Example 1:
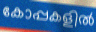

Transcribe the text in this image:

കോപ്പകളിൽ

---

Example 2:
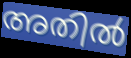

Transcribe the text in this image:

അതിൽ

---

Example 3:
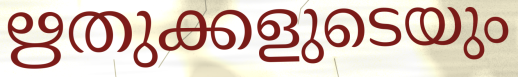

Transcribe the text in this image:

ഋതുക്കളുടെയും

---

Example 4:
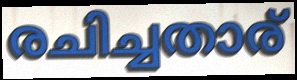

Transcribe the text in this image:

രചിച്ചതാര്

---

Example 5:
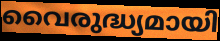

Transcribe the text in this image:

വൈരുദ്ധ്യമായി